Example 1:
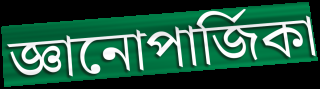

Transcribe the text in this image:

জ্ঞানোপার্জিকা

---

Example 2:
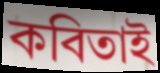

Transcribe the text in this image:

কবিতাই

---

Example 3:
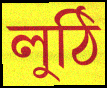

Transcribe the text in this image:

লুঠি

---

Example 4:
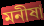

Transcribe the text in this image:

মনীষা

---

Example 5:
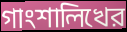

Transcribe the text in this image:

গাংশালিখের